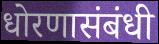
धोरणासंबंधी